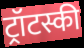
ट्रॉटस्की